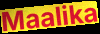
Maalika